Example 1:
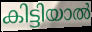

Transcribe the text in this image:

കിട്ടിയാൽ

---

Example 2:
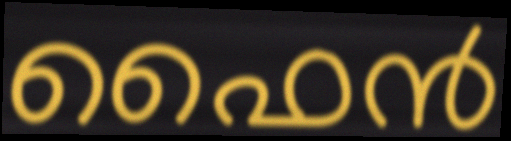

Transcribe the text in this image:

ഫൈൻ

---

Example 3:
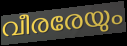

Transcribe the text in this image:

വീരരേയും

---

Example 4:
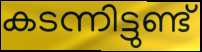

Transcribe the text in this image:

കടന്നിട്ടുണ്ട്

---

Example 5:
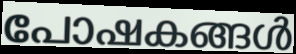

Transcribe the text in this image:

പോഷകങ്ങൾ